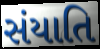
સંયાતિ